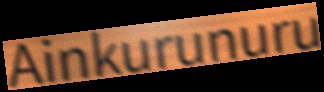
Ainkurunuru